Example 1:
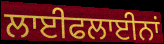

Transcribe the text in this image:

ਲਾਈਫਲਾਈਨਾਂ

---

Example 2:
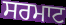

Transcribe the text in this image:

ਸਰਮਾਟ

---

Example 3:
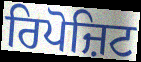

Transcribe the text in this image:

ਰਿਪੋਜ਼ਿਟ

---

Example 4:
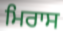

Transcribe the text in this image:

ਮਿਰਾਸ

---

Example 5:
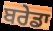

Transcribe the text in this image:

ਬਰੇਡਾ